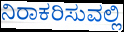
ನಿರಾಕರಿಸುವಲ್ಲಿ